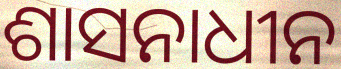
ଶାସନାଧୀନ